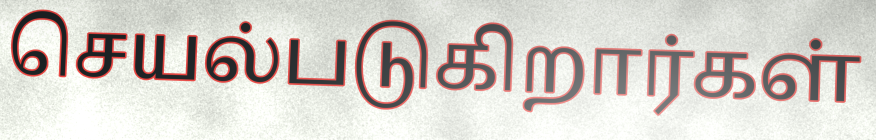
செயல்படுகிறார்கள்